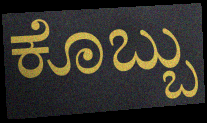
ಕೊಬ್ಬು